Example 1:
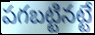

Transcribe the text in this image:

పగబట్టినట్టే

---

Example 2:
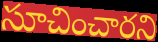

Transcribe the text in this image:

సూచించారని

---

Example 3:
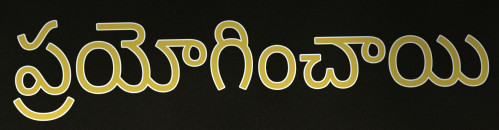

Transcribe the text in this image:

ప్రయోగించాయి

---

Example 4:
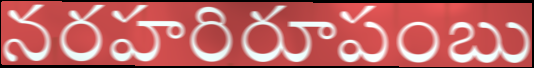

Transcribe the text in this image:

నరహరిరూపంబు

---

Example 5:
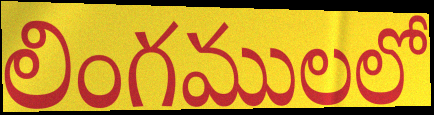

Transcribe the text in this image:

లింగములలో